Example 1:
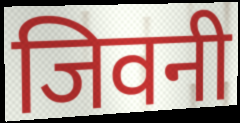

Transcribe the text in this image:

जिवनी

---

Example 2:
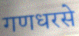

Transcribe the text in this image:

गणधरसे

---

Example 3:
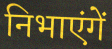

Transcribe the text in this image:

निभाएंगें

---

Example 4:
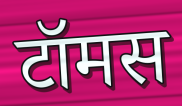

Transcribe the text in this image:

टॉमस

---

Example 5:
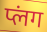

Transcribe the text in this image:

प्लंग